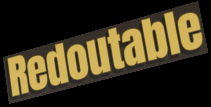
Redoutable